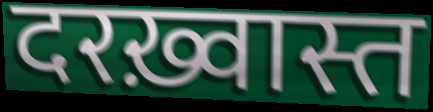
दरख़्वास्त